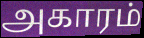
அகாரம்